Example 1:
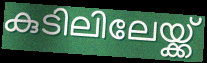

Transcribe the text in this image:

കുടിലിലേയ്ക്ക്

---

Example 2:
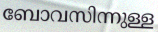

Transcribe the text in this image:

ബോവസിന്നുള്ള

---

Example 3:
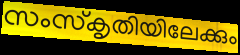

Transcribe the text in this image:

സംസ്കൃതിയിലേക്കും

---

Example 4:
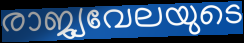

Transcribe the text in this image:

രാജ്യവേലയുടെ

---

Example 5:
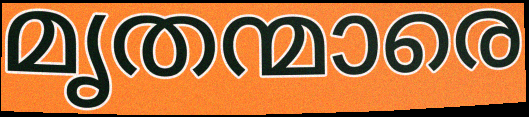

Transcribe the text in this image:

മൃതന്മാരെ